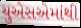
યુએસએમાંથી